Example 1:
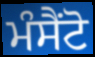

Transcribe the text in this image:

ਮੰਸੈਂਟੋ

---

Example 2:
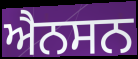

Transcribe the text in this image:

ਐਨਸਨ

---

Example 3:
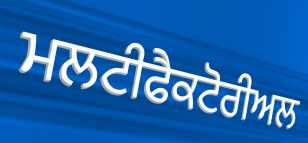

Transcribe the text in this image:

ਮਲਟੀਫੈਕਟੋਰੀਅਲ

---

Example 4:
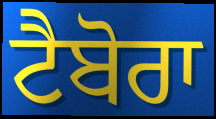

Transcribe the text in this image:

ਟੈਬੋਰਾ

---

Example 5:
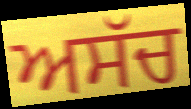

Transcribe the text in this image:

ਅਸੱਚ